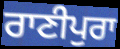
ਰਾਣੀਪੁਰਾ